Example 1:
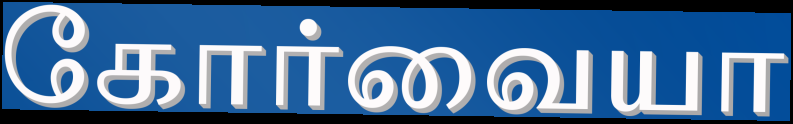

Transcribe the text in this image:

கோர்வையா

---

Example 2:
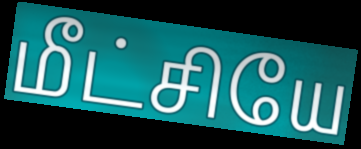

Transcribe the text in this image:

மீட்சியே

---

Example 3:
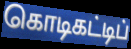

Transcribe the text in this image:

கொடிகட்டிப்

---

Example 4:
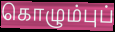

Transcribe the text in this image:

கொழும்புப்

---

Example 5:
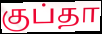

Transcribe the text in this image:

குப்தா